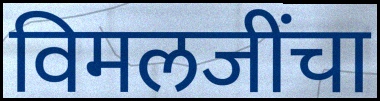
विमलजींचा